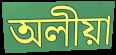
অলীয়া